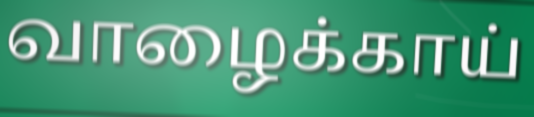
வாழைக்காய்